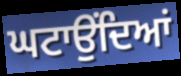
ਘਟਾਉਂਦਿਆਂ